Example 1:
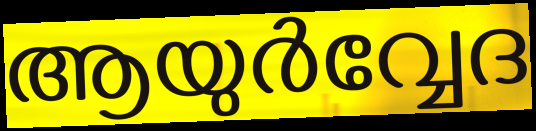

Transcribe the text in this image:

ആയുർവ്വേദ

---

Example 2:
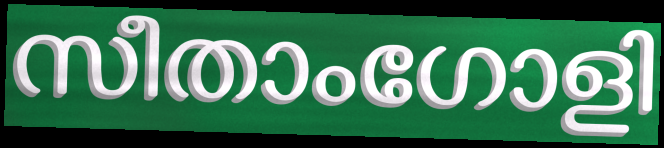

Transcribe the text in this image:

സീതാംഗോളി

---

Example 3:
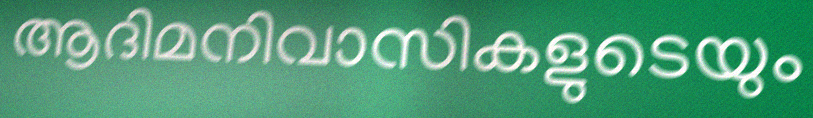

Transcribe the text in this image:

ആദിമനിവാസികളുടെയും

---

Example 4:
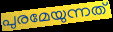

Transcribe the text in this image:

പുരമേയുന്നത്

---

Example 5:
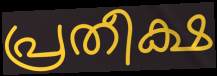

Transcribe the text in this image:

പ്രതീക്ഷ